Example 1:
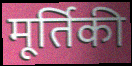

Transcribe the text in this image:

मूर्तिकी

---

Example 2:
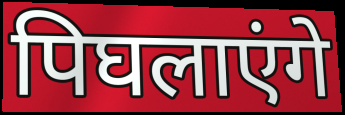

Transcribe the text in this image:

पिघलाएंगे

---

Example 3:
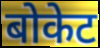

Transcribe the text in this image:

बोकेट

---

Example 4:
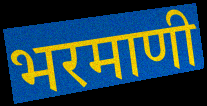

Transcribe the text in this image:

भरमाणी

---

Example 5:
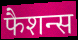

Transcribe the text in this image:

फैशन्स